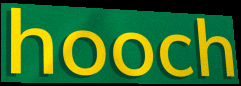
hooch